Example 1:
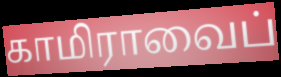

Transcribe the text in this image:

காமிராவைப்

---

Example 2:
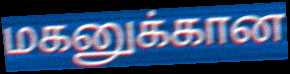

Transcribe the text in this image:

மகனுக்கான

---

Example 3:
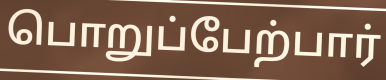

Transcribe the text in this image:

பொறுப்பேற்பார்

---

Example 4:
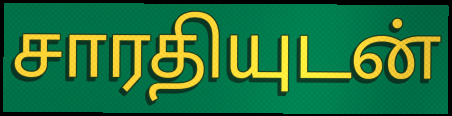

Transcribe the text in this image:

சாரதியுடன்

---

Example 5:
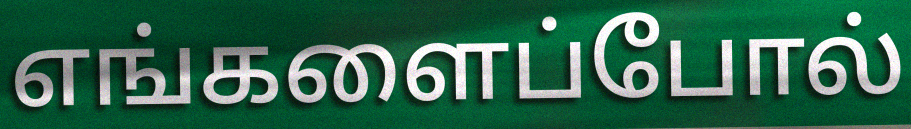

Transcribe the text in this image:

எங்களைப்போல்